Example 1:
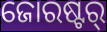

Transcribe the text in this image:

ଜୋରଷ୍ଟର୍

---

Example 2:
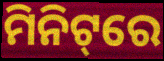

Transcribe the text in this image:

ମିନିଟ୍‌ରେ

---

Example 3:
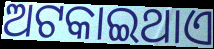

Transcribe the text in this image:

ଅଟକାଇଥାଏ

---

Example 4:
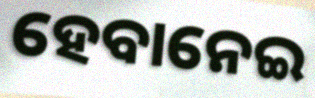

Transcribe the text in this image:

ହେବାନେଇ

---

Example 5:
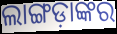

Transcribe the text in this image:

ଲାଙ୍ଗଡ଼ାଙ୍କର